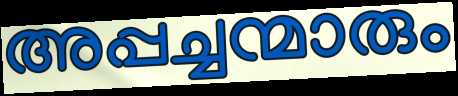
അപ്പച്ചന്മാരും